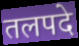
तलपदे